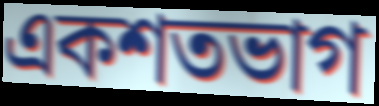
একশতভাগ